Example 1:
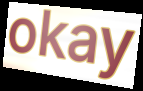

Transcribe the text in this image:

okay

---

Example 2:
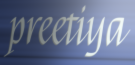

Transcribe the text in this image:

preetiya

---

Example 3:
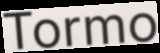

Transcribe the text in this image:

Tormo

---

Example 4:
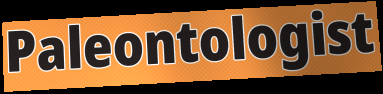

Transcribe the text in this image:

Paleontologist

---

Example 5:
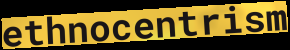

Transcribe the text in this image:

ethnocentrism